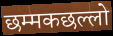
छम्मकछल्लो